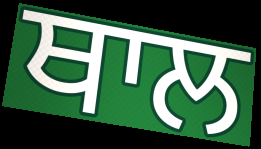
ਥਾਲ